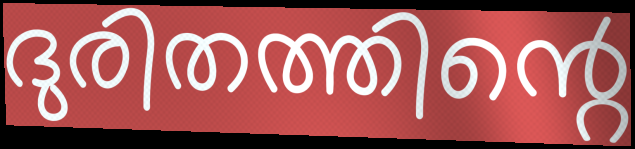
ദുരിതത്തിന്റെ